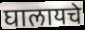
घालायचे